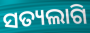
ସତ୍ୟଲାଗି